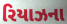
રિયાઝના